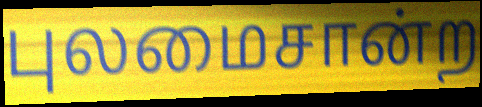
புலமைசான்ற